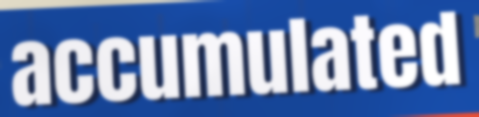
accumulated